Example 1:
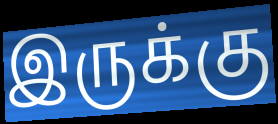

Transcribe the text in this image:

இருக்கு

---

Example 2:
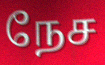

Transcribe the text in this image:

நேச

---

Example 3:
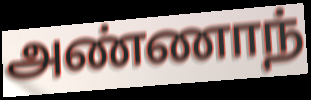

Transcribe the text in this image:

அண்ணாந்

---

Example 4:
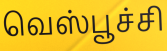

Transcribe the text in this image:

வெஸ்பூச்சி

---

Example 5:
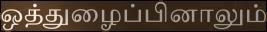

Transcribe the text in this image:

ஒத்துழைப்பினாலும்